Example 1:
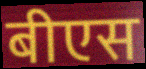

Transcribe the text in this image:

बीएस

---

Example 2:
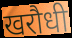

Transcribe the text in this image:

खरौधी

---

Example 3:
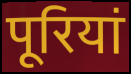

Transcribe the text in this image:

पूरियां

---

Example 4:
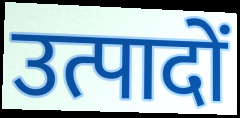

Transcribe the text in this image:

उत्पादों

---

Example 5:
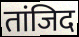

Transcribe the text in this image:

तांजिद